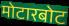
मोटारबोट